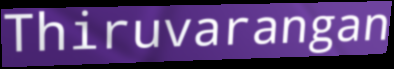
Thiruvarangan